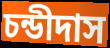
চন্ডীদাস